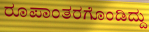
ರೂಪಾಂತರಗೊಂಡಿದ್ದು